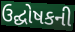
ઉદ્ઘોષકની